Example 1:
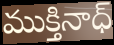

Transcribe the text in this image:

ముక్తినాధ్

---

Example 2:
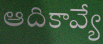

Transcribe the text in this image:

ఆదికావ్యే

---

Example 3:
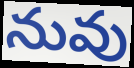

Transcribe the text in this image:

నువు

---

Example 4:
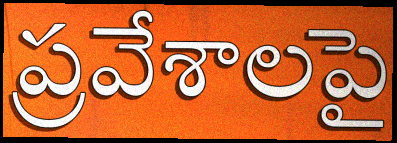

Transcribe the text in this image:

ప్రవేశాలపై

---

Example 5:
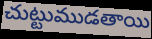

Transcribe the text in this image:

చుట్టుముడతాయి